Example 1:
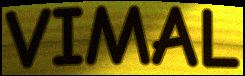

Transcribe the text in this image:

VIMAL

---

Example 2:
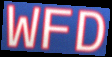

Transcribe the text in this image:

WFD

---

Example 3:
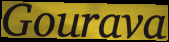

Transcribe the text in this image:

Gourava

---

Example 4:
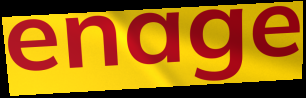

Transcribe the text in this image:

enage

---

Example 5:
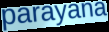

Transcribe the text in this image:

parayana